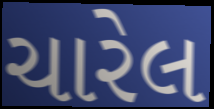
ચારેલ